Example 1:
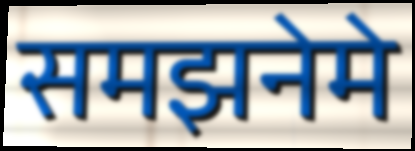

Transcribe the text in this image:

समझनेमे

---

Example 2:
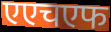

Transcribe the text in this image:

एएचएफ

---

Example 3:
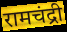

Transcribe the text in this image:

रामचंद्री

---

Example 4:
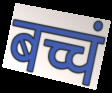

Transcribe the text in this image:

बच्चं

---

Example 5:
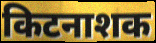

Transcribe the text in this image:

किटनाशक